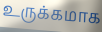
உருக்கமாக